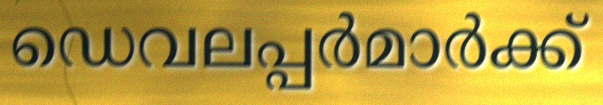
ഡെവലപ്പർമാർക്ക്